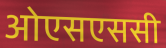
ओएसएससी